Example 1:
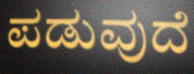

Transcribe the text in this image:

ಪಡುವುದೆ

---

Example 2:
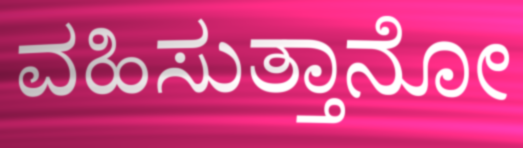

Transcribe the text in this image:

ವಹಿಸುತ್ತಾನೋ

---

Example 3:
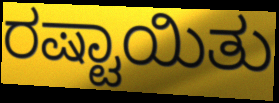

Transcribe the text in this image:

ರಷ್ಟಾಯಿತು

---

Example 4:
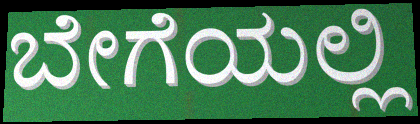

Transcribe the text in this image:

ಬೇಗೆಯಲ್ಲಿ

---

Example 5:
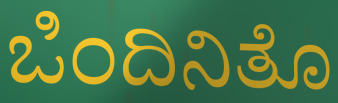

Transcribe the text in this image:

ಒಿಂದಿನಿತೊ